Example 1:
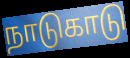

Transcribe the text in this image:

நாடுகாடு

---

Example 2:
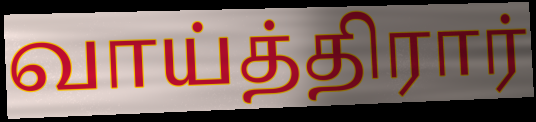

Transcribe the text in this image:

வாய்த்திரார்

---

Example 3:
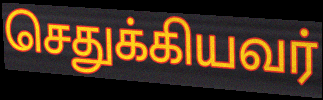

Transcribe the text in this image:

செதுக்கியவர்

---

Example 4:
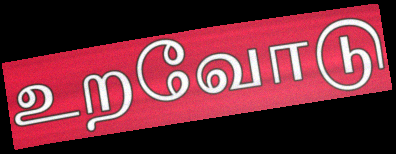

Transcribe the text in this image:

உறவோடு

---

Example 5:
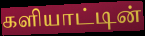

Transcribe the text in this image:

களியாட்டின்